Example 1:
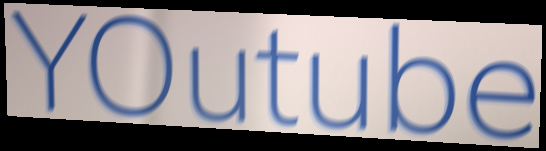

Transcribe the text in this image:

YOutube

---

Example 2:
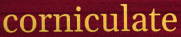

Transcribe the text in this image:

corniculate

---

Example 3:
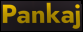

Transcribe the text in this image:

Pankaj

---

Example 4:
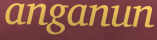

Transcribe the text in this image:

anganun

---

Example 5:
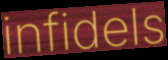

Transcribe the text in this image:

infidels